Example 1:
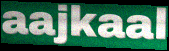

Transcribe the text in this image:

aajkaal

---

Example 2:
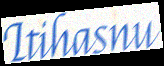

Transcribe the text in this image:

Itihasnu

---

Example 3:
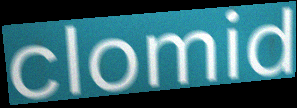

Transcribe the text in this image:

clomid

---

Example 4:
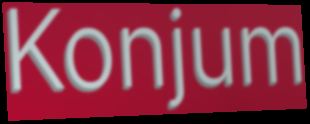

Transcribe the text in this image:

Konjum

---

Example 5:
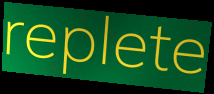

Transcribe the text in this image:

replete